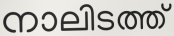
നാലിടത്ത്